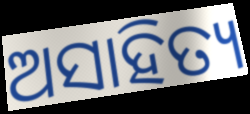
ଅସାହିତ୍ୟ